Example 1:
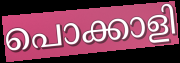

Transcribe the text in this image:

പൊക്കാളി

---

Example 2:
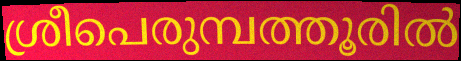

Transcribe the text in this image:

ശ്രീപെരുമ്പത്തൂരിൽ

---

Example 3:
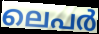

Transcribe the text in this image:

ലെപർ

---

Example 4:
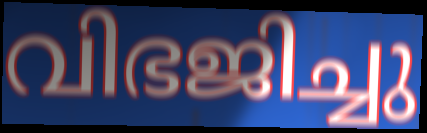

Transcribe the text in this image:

വിഭജിച്ചു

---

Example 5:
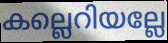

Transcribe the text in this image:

കല്ലെറിയല്ലേ